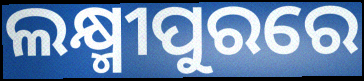
ଲକ୍ଷ୍ମୀପୁରରେ